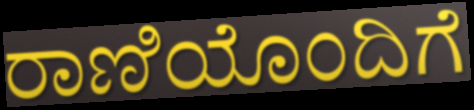
ರಾಣಿಯೊಂದಿಗೆ